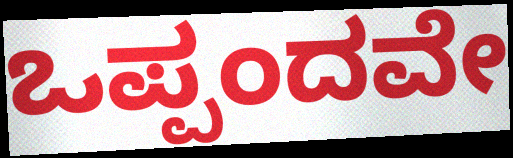
ಒಪ್ಪಂದವೇ